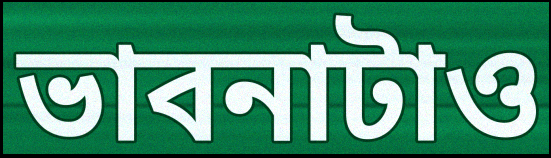
ভাবনাটাও